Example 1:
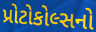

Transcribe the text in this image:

પ્રોટોકોલ્સનો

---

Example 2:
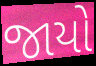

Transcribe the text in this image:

જાયો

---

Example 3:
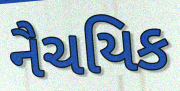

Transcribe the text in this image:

નૈચયિક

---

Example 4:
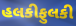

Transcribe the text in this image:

હલકીફુલકી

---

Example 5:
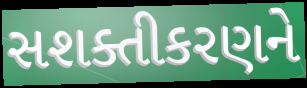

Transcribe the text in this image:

સશક્તીકરણને